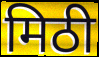
मिठी